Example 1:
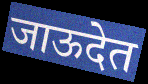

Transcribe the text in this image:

जाऊदेत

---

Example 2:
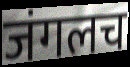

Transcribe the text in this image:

जंगलच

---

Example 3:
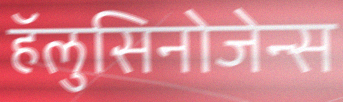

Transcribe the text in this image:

हॅलुसिनोजेन्स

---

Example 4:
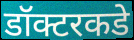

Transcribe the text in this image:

डॉक्टरकडे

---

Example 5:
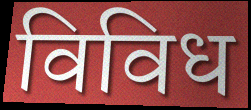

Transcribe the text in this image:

विविध